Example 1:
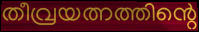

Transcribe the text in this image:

തീവ്രയത്നത്തിന്റെ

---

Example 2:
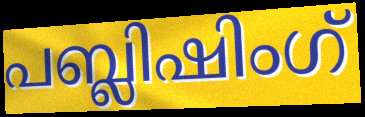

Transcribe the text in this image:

പബ്ലിഷിംഗ്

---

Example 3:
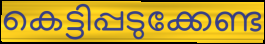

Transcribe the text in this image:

കെട്ടിപ്പടുക്കേണ്ട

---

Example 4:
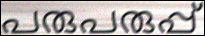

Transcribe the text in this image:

പരുപരുപ്പ്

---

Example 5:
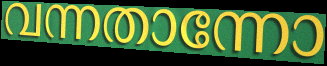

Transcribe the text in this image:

വന്നതാന്നോ